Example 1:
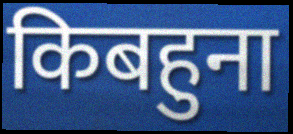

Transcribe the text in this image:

किबहुना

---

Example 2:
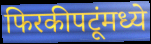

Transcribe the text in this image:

फिरकीपटूंमध्ये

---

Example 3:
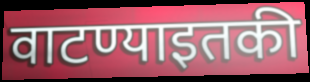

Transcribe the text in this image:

वाटण्याइतकी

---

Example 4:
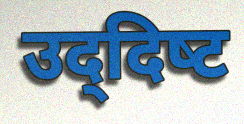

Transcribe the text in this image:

उद्‌दिष्‍ट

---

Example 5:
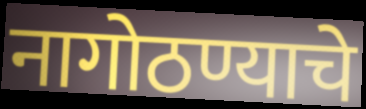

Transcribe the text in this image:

नागोठण्याचे